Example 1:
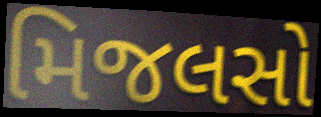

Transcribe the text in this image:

મિજલસો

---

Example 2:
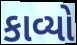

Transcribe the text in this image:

કાવ્યો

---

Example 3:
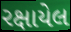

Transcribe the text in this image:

રક્ષાયેલ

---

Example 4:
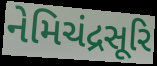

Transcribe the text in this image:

નેમિચંદ્રસૂરિ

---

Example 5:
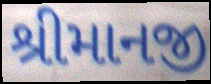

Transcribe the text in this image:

શ્રીમાનજી